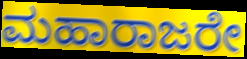
ಮಹಾರಾಜರೇ